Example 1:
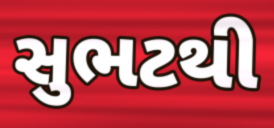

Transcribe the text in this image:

સુભટથી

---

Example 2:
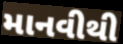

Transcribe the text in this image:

માનવીથી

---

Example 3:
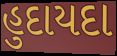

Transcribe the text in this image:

હુદાયદા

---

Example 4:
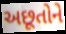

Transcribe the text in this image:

અછૂતોને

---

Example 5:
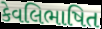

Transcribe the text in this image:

કેવલિભાષિત